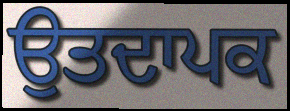
ਉਤਦਾਪਕ